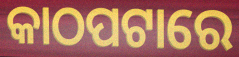
କାଠପଟାରେ